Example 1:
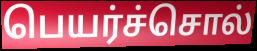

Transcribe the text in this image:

பெயர்ச்சொல்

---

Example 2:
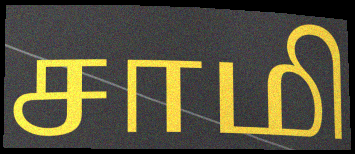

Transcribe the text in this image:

சாமி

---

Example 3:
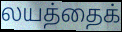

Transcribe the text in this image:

லயத்தைக்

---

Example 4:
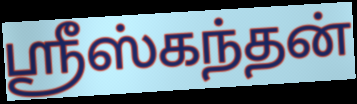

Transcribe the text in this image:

ஸ்ரீஸ்கந்தன்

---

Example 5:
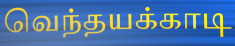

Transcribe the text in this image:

வெந்தயக்காடி